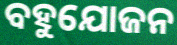
ବହୁଯୋଜନ